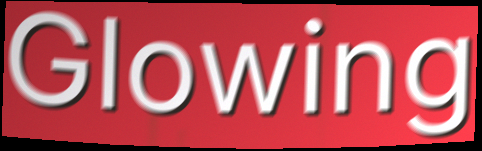
Glowing